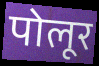
पोलूर